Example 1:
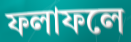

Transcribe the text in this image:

ফলাফলে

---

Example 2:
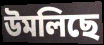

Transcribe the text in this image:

উমলিছে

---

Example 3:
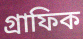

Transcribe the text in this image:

গ্ৰাফিক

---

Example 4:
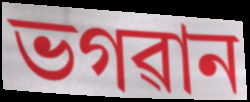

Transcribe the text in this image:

ভগৱান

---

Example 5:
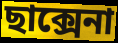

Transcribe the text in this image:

ছাক্সেনা